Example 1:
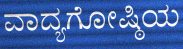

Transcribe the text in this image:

ವಾದ್ಯಗೋಷ್ಠಿಯ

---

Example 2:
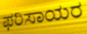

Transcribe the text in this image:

ಫರಿಸಾಯರ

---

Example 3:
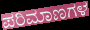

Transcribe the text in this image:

ಪರಿಮಾಣಗಳ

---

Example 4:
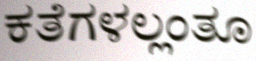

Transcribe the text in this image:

ಕತೆಗಳಲ್ಲಂತೂ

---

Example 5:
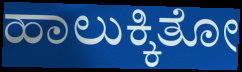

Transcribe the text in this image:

ಹಾಲುಕ್ಕಿತೋ